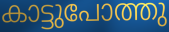
കാട്ടുപോത്തു